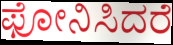
ಫೋನಿಸಿದರೆ